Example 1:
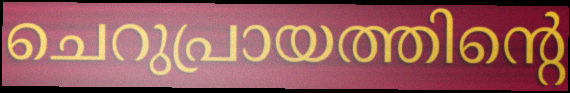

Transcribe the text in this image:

ചെറുപ്രായത്തിന്റെ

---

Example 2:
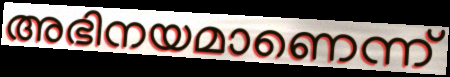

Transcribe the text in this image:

അഭിനയമാണെന്ന്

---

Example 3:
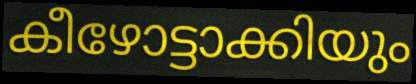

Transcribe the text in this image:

കീഴോട്ടാക്കിയും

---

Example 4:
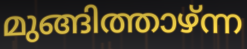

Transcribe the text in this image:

മുങ്ങിത്താഴ്ന്ന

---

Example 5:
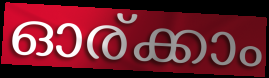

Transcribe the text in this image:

ഓര്ക്കാം